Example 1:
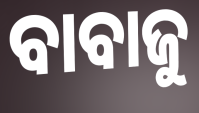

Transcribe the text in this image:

ବାବାଜୁ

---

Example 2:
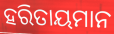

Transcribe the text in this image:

ହରିତାୟମାନ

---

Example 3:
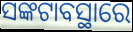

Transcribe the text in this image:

ସଙ୍କଟାବସ୍ଥାରେ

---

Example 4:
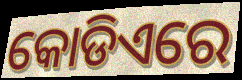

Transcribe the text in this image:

କୋଡିଏରେ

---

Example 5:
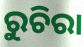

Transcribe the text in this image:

ରୁଚିରା